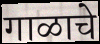
गाळाचे